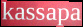
kassapa